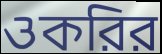
ওকরির